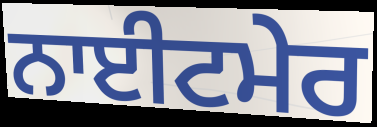
ਨਾਈਟਮੇਰ